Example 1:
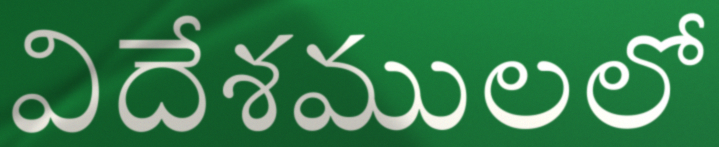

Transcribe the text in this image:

విదేశములలో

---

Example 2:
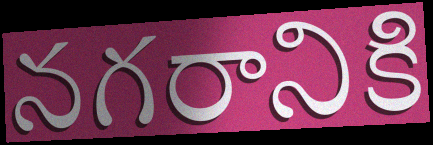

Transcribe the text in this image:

నగరానికి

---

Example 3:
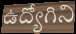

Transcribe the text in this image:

ఉద్యోగిని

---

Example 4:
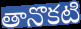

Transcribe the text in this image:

తానొకటి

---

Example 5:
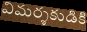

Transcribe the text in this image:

విమర్శకుడికి